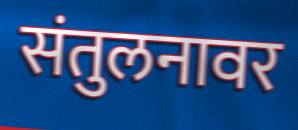
संतुलनावर